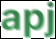
apj